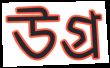
উগ্র